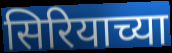
सिरियाच्या